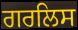
ਗਰਲਿਸ